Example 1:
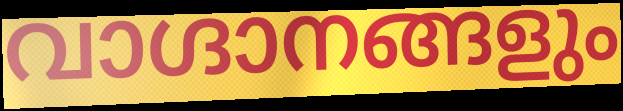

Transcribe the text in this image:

വാഗ്ദാനങ്ങളും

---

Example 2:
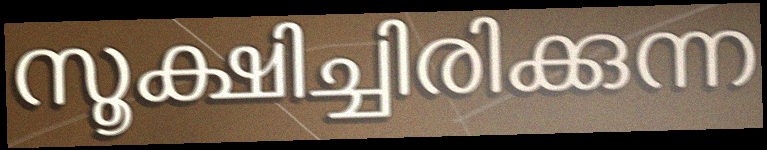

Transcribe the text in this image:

സൂക്ഷിച്ചിരിക്കുന്ന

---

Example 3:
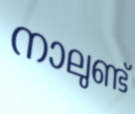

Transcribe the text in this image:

നാലുണ്ട്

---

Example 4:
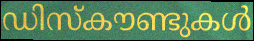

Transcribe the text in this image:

ഡിസ്കൗണ്ടുകൾ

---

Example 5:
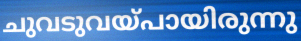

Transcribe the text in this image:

ചുവടുവയ്പായിരുന്നു